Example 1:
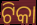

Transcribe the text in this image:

ଟିକା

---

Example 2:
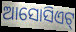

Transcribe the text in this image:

ଆସୋସିଏଟ୍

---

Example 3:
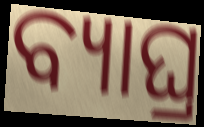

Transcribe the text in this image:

ବ୍ୟାଘ୍ର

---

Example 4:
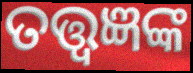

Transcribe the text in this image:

ତତ୍ତ୍ଵଜ୍ଞଙ୍କ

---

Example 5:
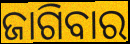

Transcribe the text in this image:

ଜାଗିବାର